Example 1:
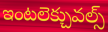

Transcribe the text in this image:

ఇంటలెక్చువల్స్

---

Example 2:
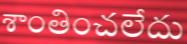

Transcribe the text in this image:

శాంతించలేదు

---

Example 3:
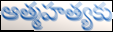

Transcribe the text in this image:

ఆత్మహత్యకు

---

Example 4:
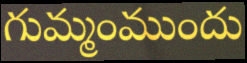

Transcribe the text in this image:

గుమ్మంముందు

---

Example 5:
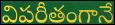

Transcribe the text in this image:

విపరీతంగానే